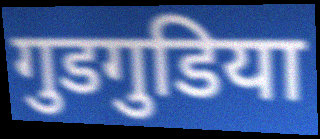
गुडगुडिया